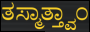
ತಸ್ಮಾತ್ತ್ವಾಂ